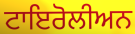
ਟਾਇਰੋਲੀਅਨ